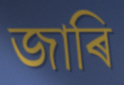
জাৰি